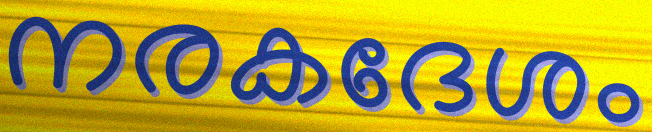
നരകദേശം